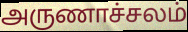
அருணாச்சலம்